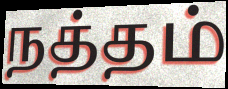
நத்தம்